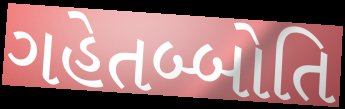
ગહેતબ્બોતિ